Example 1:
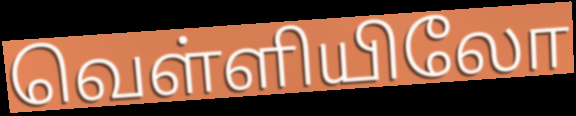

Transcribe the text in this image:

வெள்ளியிலோ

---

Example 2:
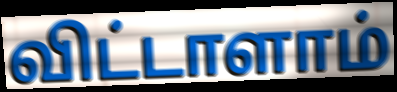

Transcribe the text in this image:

விட்டாளாம்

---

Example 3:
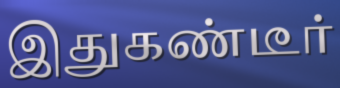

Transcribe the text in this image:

இதுகண்டீர்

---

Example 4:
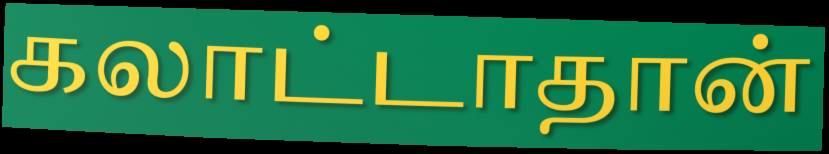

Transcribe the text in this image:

கலாட்டாதான்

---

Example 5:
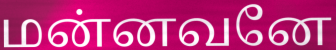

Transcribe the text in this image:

மன்னவனே